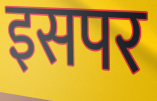
इसपर